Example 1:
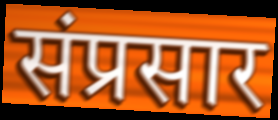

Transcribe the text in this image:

संप्रसार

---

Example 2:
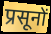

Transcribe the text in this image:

प्रसूनों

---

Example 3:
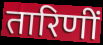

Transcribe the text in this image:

तारिणीं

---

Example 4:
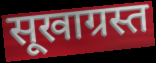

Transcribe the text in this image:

सूखाग्रस्‍त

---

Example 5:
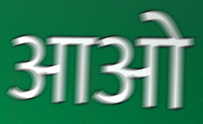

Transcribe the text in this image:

आओ